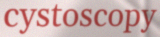
cystoscopy